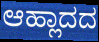
ಆಹ್ಲಾದದ